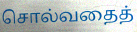
சொல்வதைத்